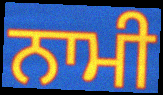
ਨਾਮੀ